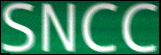
SNCC